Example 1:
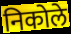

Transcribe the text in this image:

निकोले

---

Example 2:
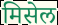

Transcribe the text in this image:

मिसेल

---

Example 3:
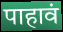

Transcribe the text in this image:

पाहावं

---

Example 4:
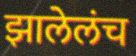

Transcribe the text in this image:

झालेलंच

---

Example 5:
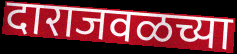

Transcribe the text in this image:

दाराजवळच्या